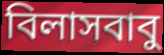
বিলাসবাবু